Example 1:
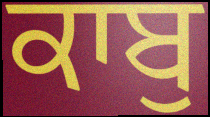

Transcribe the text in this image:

ਕਾਬੁ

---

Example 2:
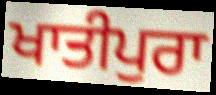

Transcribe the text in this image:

ਖਾਤੀਪੁਰਾ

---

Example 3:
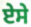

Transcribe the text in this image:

ਏਸੇ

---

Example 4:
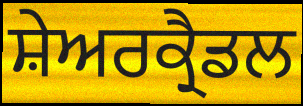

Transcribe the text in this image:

ਸ਼ੇਅਰਕ੍ਰੈਡਲ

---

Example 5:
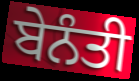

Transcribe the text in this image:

ਬੇਨੰਤੀ